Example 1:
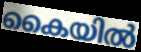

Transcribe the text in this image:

കൈയിൽ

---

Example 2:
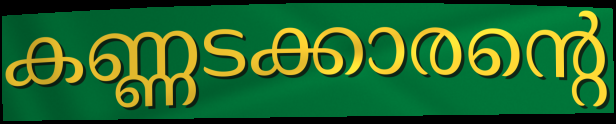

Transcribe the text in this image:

കണ്ണടക്കാരന്റെ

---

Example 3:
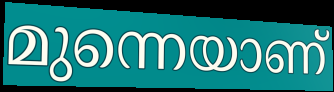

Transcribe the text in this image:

മുന്നെയാണ്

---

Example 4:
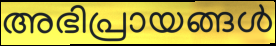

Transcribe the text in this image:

അഭിപ്രായങ്ങൾ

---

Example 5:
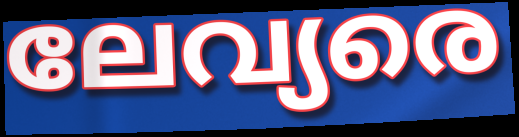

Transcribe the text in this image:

ലേവ്യരെ